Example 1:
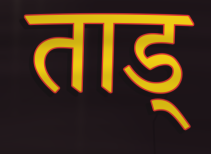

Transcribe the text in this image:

ताड्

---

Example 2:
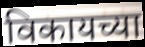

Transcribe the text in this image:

विकायच्या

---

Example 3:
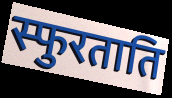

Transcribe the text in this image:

स्फुरताति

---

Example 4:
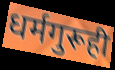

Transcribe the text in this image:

धर्मगुरूही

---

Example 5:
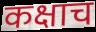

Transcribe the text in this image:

कक्षाच